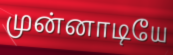
முன்னாடியே